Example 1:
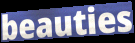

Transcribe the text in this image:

beauties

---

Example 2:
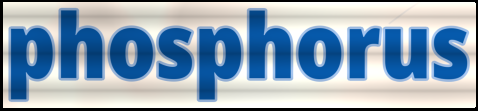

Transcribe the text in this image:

phosphorus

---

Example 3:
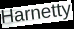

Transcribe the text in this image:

Harnetty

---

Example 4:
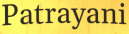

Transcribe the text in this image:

Patrayani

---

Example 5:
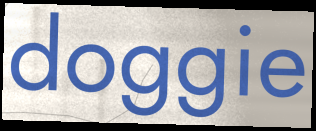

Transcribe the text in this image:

doggie